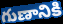
గుణానికి